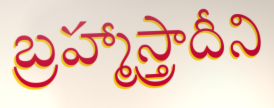
బ్రహ్మాస్త్రాదీని